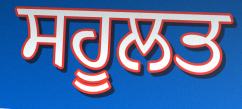
ਸਹੂਲਤ